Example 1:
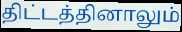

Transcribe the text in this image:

திட்டத்தினாலும்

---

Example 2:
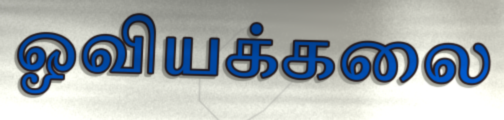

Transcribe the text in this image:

ஓவியக்கலை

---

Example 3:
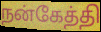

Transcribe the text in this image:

நன்கேத்தி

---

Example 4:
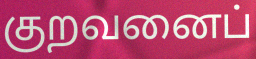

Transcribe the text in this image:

குறவனைப்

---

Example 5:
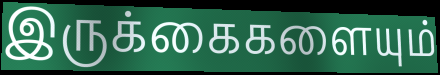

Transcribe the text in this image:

இருக்கைகளையும்